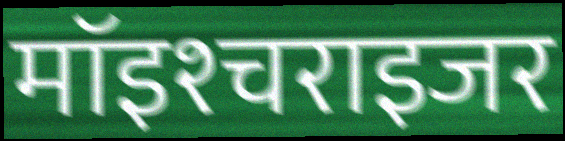
मॉइश्चराइजर